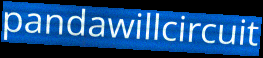
pandawillcircuit